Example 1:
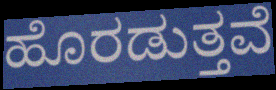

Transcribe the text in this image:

ಹೊರಡುತ್ತವೆ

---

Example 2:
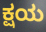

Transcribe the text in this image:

ಕ್ಷಯ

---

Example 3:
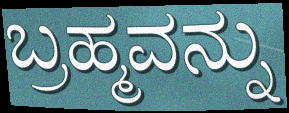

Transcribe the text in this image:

ಬ್ರಹ್ಮವನ್ನು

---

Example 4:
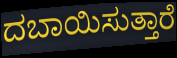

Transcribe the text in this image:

ದಬಾಯಿಸುತ್ತಾರೆ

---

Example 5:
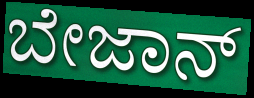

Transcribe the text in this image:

ಬೇಜಾನ್